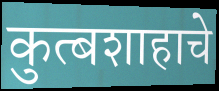
कुत्बशाहाचे